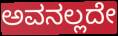
ಅವನಲ್ಲದೇ